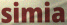
simia